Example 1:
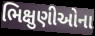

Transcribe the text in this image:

ભિક્ષુણીઓના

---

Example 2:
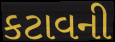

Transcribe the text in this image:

કટાવની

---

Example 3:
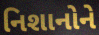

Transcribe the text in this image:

નિશાનોને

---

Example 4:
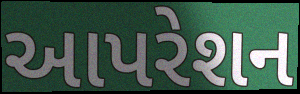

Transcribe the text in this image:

આપરેશન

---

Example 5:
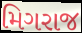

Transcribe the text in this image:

મિગરાજ